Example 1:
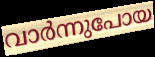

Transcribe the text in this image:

വാർന്നുപോയ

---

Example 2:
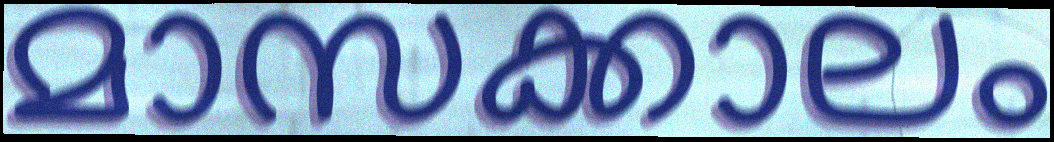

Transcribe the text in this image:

മാസക്കാലം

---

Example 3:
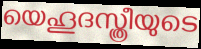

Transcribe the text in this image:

യെഹൂദസ്ത്രീയുടെ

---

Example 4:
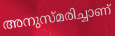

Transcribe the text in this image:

അനുസ്മരിച്ചാണ്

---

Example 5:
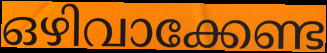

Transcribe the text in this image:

ഒഴിവാക്കേണ്ട